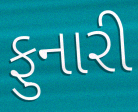
ફુનારી